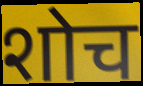
शोच